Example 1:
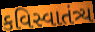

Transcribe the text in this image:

કવિસ્વાતંત્ર્ય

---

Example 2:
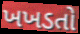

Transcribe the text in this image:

ખખડતો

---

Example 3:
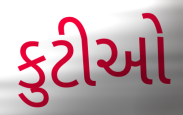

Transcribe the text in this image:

કુટીઓ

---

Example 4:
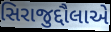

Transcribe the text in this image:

સિરાજુદ્દૌલાએ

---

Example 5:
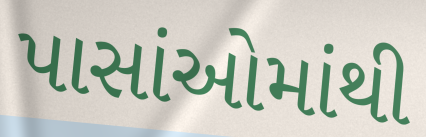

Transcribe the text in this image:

પાસાંઓમાંથી